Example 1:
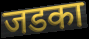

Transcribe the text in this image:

जडका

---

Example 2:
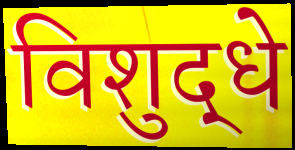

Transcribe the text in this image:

विशुद्धे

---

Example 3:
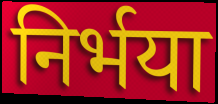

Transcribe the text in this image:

निर्भया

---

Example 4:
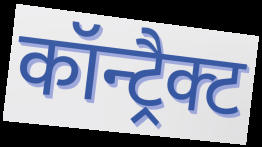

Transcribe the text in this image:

कॉन्‍ट्रैक्‍ट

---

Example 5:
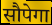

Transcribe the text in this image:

सौपेगा